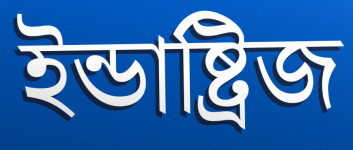
ইন্ডাষ্ট্রিজ